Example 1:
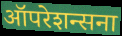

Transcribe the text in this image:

ऑपरेशन्सना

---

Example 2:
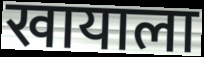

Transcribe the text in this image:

खायाला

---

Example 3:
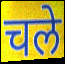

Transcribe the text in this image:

चले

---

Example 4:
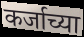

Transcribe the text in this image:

कर्जाच्या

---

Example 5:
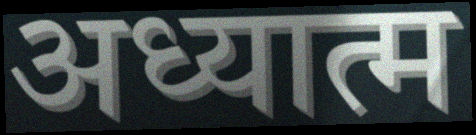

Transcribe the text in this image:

अध्यात्म